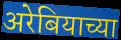
अरेबियाच्या